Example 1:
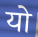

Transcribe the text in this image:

यो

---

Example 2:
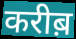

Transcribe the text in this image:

करीब़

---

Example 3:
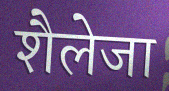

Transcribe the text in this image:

शैलेजा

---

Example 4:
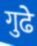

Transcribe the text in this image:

गुढे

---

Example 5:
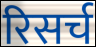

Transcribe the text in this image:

रिसर्च